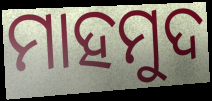
ମାହମୁଦ